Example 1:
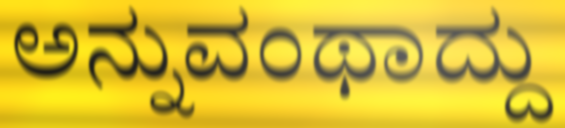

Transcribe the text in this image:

ಅನ್ನುವಂಥಾದ್ದು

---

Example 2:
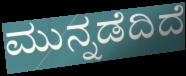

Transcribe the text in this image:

ಮುನ್ನಡೆದಿದೆ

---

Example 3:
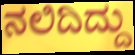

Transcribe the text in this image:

ನಲಿದಿದ್ದು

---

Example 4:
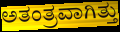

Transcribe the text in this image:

ಅತಂತ್ರವಾಗಿತ್ತು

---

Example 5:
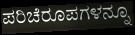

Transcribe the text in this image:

ಪರಿಚೆರೂಪಗಳನ್ನೂ